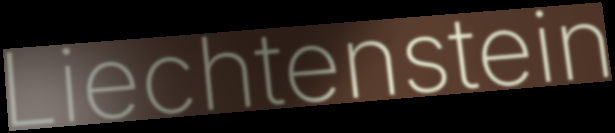
Liechtenstein